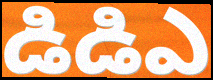
డిడిఎ